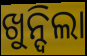
ଖୁନ୍ଦିଲା